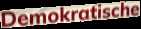
Demokratische